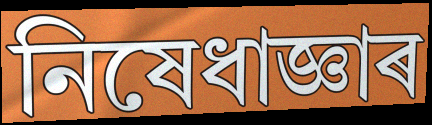
নিষেধাজ্ঞাৰ